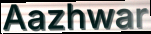
Aazhwar